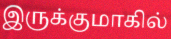
இருக்குமாகில்